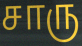
சாரு